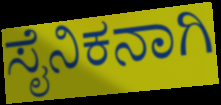
ಸೈನಿಕನಾಗಿ